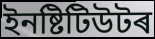
ইনষ্টিটিউটৰ